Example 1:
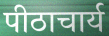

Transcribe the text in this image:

पीठाचार्य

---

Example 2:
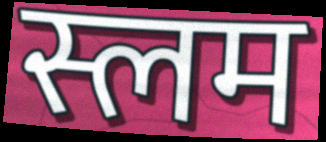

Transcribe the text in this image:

स्लम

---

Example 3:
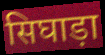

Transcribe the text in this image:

सिघाड़ा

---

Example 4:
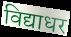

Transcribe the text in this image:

विद्याधर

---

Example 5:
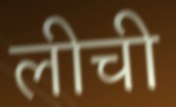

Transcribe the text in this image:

लीची